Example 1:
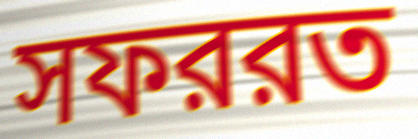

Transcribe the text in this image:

সফররত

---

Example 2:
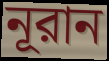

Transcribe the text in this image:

নূরান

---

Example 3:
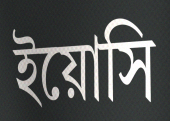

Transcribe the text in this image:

ইয়োসি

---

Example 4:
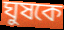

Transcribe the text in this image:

ঘুষকে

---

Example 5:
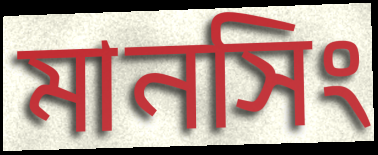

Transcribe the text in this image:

মানসিং